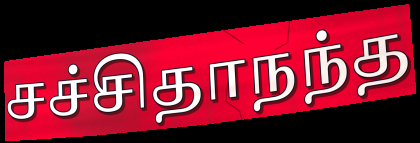
சச்சிதாநந்த